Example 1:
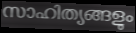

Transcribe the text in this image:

സാഹിത്യങ്ങളും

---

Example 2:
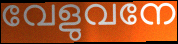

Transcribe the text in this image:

വേളുവനേ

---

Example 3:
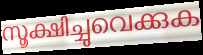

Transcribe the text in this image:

സൂക്ഷിച്ചുവെക്കുക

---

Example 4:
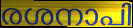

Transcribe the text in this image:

രശനാപി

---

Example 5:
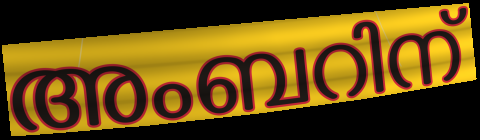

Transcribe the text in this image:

അംബറിന്